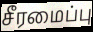
சீரமைப்பு